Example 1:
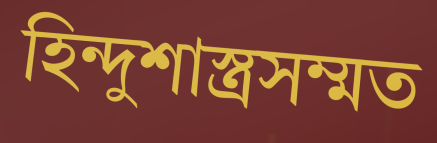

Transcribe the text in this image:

হিন্দুশাস্ত্রসম্মত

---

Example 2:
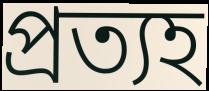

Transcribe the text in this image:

প্রত্যহ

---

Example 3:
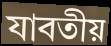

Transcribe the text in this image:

যাবতীয়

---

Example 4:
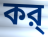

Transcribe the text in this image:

কর্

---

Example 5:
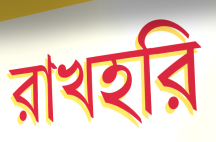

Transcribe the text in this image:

রাখহরি